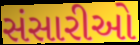
સંસારીઓ